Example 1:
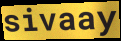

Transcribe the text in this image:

sivaay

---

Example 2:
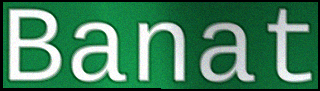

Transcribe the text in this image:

Banat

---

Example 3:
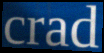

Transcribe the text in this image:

crad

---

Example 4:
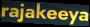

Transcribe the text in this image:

rajakeeya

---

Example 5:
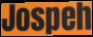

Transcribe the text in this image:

Jospeh